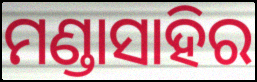
ମଣ୍ଡାସାହିର